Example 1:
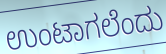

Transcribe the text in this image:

ಉಂಟಾಗಲೆಂದು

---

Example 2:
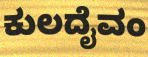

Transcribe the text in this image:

ಕುಲದೈವಂ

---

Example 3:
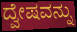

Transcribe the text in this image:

ದ್ವೇಷವನ್ನು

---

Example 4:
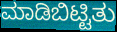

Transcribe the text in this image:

ಮಾಡಿಬಿಟ್ಟಿತು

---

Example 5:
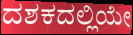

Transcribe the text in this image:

ದಶಕದಲ್ಲಿಯೇ